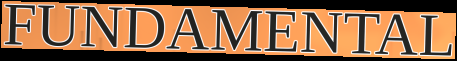
FUNDAMENTAL